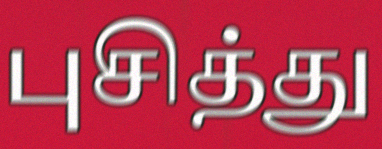
புசித்து